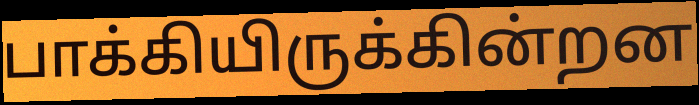
பாக்கியிருக்கின்றன